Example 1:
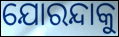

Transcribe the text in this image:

ଯୋରନ୍ଦାକୁ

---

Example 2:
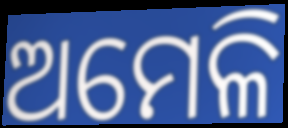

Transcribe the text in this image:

ଅମେଳି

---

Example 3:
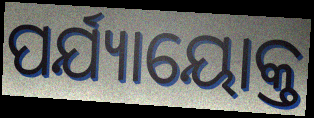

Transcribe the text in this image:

ପର୍ଯ୍ୟାୟୋକ୍ତ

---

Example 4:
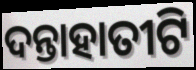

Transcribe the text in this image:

ଦନ୍ତାହାତୀଟି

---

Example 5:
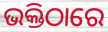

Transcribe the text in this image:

ଭକ୍ତିଠାରେ